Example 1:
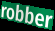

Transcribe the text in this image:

robber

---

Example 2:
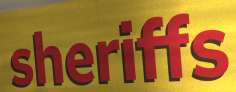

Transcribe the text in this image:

sheriffs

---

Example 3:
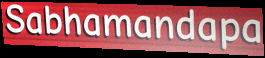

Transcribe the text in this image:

Sabhamandapa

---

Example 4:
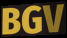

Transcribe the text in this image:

BGV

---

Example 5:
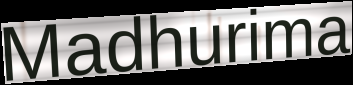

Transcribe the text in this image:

Madhurima